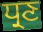
ਧ੍ਰਣ